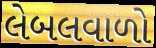
લેબલવાળો